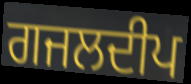
ਗਜਲਦੀਪ